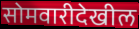
सोमवारीदेखील